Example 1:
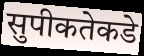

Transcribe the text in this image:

सुपीकतेकडे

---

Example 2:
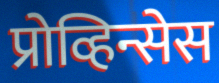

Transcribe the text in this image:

प्रोव्हिन्सेस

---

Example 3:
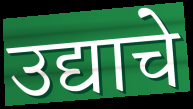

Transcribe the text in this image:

उद्याचे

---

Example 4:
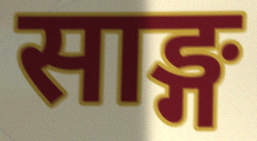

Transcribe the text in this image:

साङ्ग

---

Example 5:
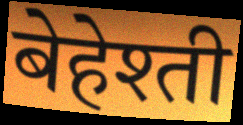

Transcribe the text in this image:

बेहेश्ती